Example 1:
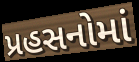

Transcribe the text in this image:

પ્રહસનોમાં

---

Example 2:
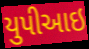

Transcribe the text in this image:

યુપીઆઇ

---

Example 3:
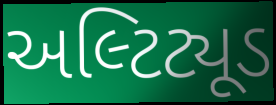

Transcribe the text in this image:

અલ્ટિટ્યૂડ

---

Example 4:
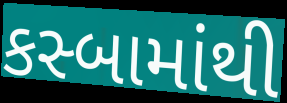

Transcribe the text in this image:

કસ્બામાંથી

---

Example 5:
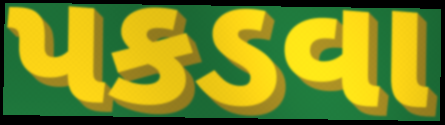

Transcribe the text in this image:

પકડવા